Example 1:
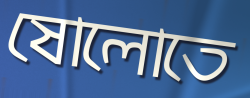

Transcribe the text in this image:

ষোলোতে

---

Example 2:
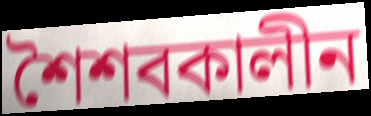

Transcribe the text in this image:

শৈশবকালীন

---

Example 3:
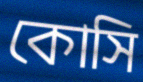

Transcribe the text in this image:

কোসি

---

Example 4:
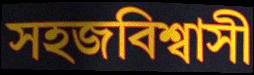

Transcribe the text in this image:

সহজবিশ্বাসী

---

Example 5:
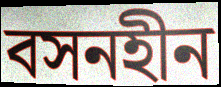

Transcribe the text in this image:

বসনহীন